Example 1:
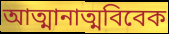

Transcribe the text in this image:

আত্মানাত্মবিবেক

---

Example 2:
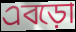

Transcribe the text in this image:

এবড়ো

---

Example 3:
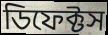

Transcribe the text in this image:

ডিফেক্টস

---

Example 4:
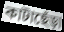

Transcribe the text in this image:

কাটাছেঁড়া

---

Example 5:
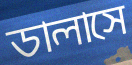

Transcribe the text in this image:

ডালাসে